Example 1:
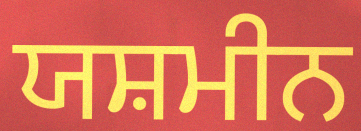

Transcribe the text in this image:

ਯਸ਼ਮੀਨ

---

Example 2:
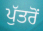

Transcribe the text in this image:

ਪੁੱਤਰੋਂ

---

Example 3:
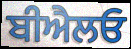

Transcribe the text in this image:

ਬੀਐਲਓ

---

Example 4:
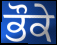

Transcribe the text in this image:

ਭੌਕੇ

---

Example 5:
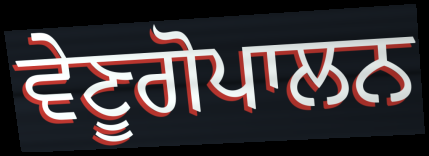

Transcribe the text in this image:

ਵੇਣੂਗੋਪਾਲਨ